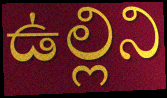
ఉల్లిని